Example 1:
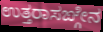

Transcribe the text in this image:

ಉತ್ತರಾಸಙ್ಗೇನ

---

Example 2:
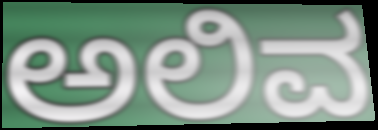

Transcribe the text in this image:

ಅಲಿವ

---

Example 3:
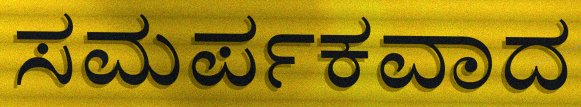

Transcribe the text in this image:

ಸಮರ್ಪಕವಾದ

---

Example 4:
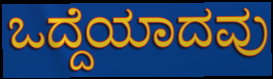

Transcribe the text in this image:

ಒದ್ದೆಯಾದವು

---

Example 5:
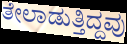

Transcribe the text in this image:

ತೇಲಾಡುತ್ತಿದ್ದವು